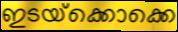
ഇടയ്‌ക്കൊക്കെ